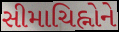
સીમાચિહ્નોને